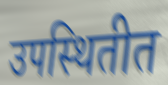
उपस्थितीत